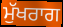
ਮੁੱਖਰਾਗ